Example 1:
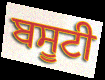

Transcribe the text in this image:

ਬਸੂਟੀ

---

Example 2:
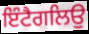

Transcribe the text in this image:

ਇੰਟੈਗਲਿਉ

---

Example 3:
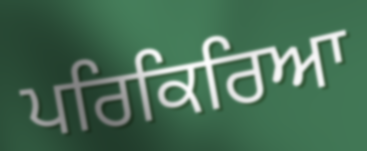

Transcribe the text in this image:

ਪਰਿਕਿਰਿਆ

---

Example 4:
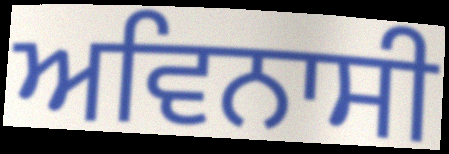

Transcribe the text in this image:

ਅਵਿਨਾਸੀ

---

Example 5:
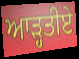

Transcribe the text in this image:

ਆੜ੍ਹਤੀਏ